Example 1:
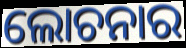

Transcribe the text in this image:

ଲୋଚନାର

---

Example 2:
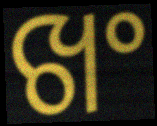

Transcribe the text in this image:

ଖଂ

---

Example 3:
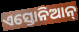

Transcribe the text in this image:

ଏସ୍ତୋନିଆନ୍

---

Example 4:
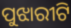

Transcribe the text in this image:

ପୁଝାରୀଟି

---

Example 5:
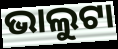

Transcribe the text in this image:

ଭାଲୁଟା